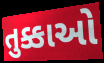
તુક્કાઓ